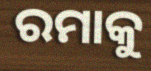
ରମାକୁ